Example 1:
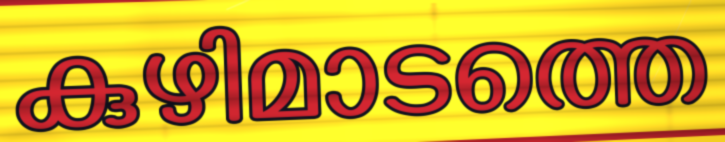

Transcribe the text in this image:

കുഴിമാടത്തെ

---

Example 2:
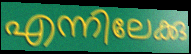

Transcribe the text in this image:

എന്നിലേക്കു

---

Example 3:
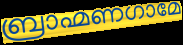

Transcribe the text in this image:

ബ്രാഹ്മണഗാമേ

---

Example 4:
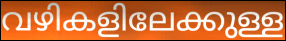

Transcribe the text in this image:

വഴികളിലേക്കുള്ള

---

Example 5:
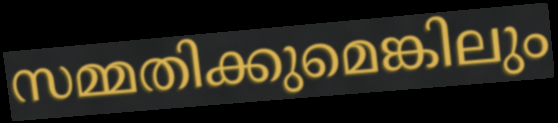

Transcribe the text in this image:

സമ്മതിക്കുമെങ്കിലും